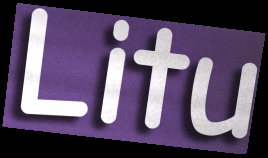
Litu